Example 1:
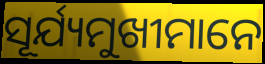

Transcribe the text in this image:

ସୂର୍ଯ୍ୟମୁଖୀମାନେ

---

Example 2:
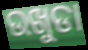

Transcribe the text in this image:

ଉଖୁଡା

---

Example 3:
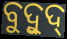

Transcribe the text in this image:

ବୁଦ୍ବୁଦ୍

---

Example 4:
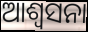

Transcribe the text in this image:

ଆଶ୍ୱସନା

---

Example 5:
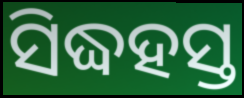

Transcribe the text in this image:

ସିଦ୍ଧହସ୍ତ